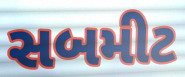
સબમીટ